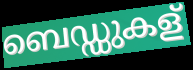
ബെഡ്ഡുകള്